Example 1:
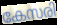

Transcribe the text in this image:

കേസരി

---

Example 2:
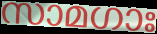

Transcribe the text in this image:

സാമഗാഃ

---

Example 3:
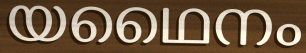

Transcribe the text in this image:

യഥൈനം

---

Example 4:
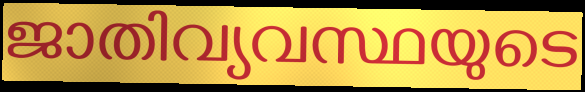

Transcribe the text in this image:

ജാതിവ്യവസ്ഥയുടെ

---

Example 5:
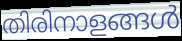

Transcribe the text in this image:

തിരിനാളങ്ങൾ